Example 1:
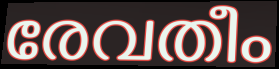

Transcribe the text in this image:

രേവതീം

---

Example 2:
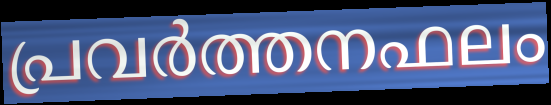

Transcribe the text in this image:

പ്രവർത്തനഫലം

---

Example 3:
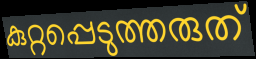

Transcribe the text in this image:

കുറ്റപ്പെടുത്തരുത്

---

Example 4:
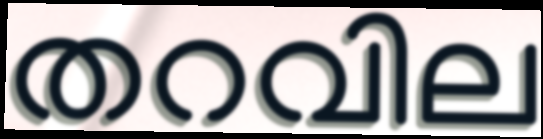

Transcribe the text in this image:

തറവില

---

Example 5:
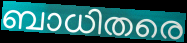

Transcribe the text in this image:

ബാധിതരെ